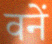
वनें